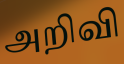
அறிவி